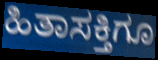
ಹಿತಾಸಕ್ತಿಗೂ